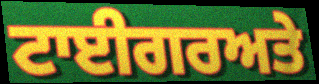
ਟਾਈਗਰਅਤੇ